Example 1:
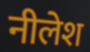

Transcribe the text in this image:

नीलेश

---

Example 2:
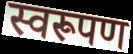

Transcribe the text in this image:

स्वरूपण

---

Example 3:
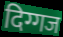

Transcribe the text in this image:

दिग्गज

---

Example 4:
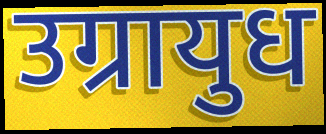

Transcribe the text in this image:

उग्रायुध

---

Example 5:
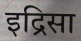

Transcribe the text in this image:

इद्रिसा